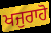
ਖਜੁਰਾਹੋ